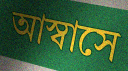
আস্বাসে